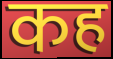
कह